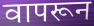
वापरून